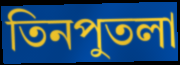
তিনপুতলা